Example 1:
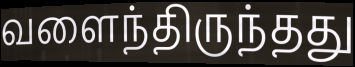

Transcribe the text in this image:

வளைந்திருந்தது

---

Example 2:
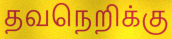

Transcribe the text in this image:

தவநெறிக்கு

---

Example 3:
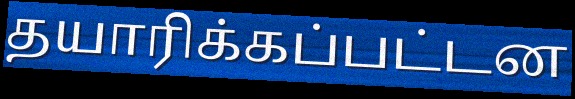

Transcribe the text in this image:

தயாரிக்கப்பட்டன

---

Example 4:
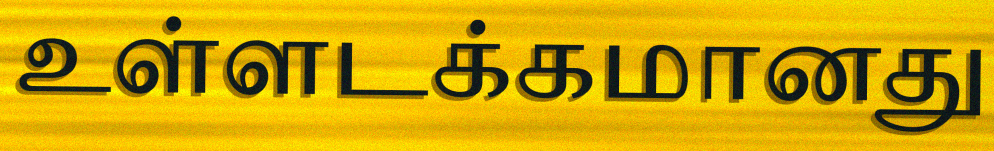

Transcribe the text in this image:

உள்ளடக்கமானது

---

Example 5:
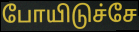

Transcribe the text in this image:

போயிடுச்சே